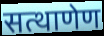
सत्थाणेण